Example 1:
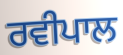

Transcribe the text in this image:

ਰਵੀਪਾਲ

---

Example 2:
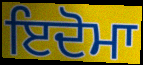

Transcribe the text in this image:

ਇਦੋਮਾ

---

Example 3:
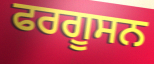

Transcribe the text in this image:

ਫਰਗੂਸਨ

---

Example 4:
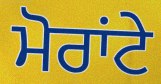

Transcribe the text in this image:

ਮੋਰਾਂਟੇ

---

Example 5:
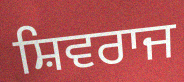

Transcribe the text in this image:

ਸ਼ਿਵਰਾਜ